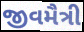
જીવમૈત્રી